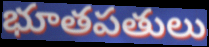
భూతపతులు